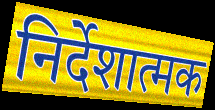
निर्देशात्मक